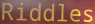
Riddles